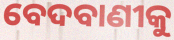
ବେଦବାଣୀକୁ